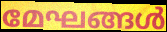
മേഘങ്ങൾ